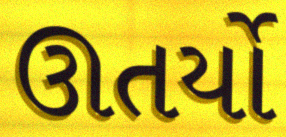
ઊતર્યો